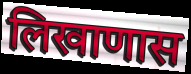
लिखाणास